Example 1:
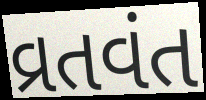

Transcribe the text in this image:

વ્રતવંત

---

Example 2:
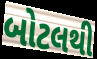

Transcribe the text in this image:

બોટલથી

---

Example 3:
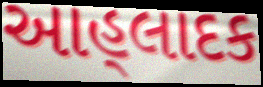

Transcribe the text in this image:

આહ્‌લાદક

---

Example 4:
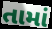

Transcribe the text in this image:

તામાં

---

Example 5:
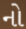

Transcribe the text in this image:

નો